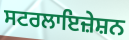
ਸਟਰਲਾਇਜ਼ੇਸ਼ਨ